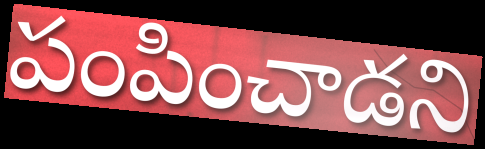
పంపించాడని